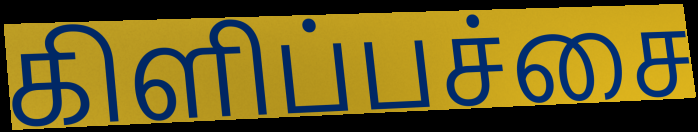
கிளிப்பச்சை